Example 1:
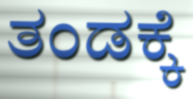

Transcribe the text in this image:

ತಂಡಕ್ಕೆ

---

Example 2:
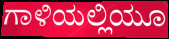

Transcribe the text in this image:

ಗಾಳಿಯಲ್ಲಿಯೂ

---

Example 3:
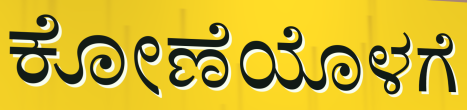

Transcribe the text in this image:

ಕೋಣೆಯೊಳಗೆ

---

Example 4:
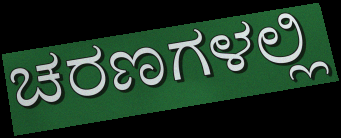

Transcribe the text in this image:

ಚರಣಗಳಲ್ಲಿ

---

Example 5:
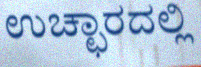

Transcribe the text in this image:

ಉಚ್ಛಾರದಲ್ಲಿ